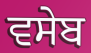
ਵਸੇਬ